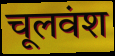
चूलवंश